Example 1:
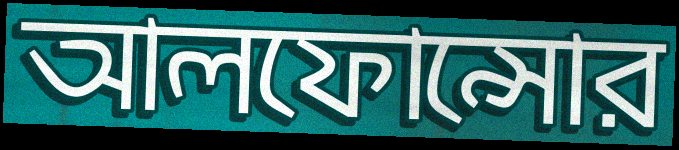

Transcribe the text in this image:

আলফোন্সোর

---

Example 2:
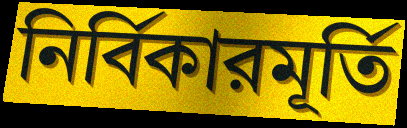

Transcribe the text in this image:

নির্বিকারমূর্তি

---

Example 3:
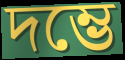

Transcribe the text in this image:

দম্ভে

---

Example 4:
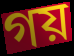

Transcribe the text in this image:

গয়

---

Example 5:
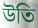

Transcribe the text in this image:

উতি